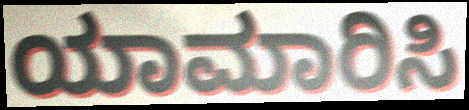
ಯಾಮಾರಿಸಿ